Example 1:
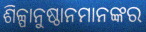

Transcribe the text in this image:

ଶିଳ୍ପାନୁଷ୍ଠାନମାନଙ୍କର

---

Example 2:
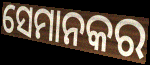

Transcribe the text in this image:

ସେମାନକର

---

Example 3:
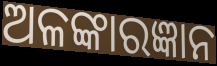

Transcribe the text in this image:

ଅଳଙ୍କାରଜ୍ଞାନ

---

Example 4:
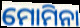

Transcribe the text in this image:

ମୋମିନା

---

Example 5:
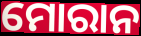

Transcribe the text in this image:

ମୋରାନ